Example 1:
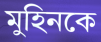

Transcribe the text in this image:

মুহিনকে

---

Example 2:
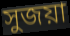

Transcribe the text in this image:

সুজয়া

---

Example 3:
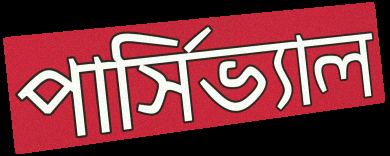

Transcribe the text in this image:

পার্সিভ্যাল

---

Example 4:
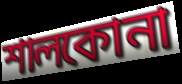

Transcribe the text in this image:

শালকোনা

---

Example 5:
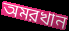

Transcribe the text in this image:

অমরখান